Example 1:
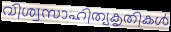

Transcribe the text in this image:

വിശ്വസാഹിത്യകൃതികൾ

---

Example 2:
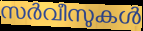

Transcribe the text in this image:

സർവീസുകൾ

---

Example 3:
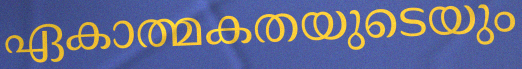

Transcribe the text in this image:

ഏകാത്മകതയുടെയും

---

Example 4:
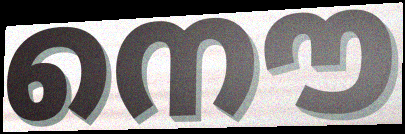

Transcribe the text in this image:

നൌ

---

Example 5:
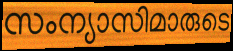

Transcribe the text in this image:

സംന്യാസിമാരുടെ